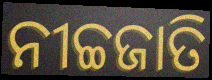
ନୀଚ୍ଚଜାତି